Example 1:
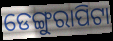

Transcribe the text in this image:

ଡେଙ୍ଗୁରାପିଟା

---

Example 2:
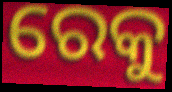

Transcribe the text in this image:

ରେକୁ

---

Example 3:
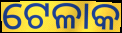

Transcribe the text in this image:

ଟେଳାକ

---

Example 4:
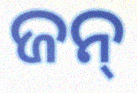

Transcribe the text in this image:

ଜନ୍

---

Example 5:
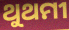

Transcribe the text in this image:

ଥୁଥମୀ